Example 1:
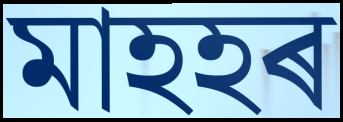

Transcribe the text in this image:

মাহহৰ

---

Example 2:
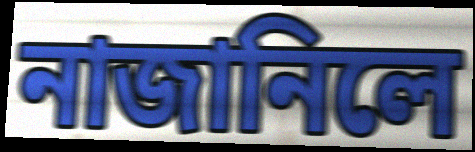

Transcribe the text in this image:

নাজানিলে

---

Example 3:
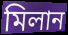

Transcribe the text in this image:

মিলান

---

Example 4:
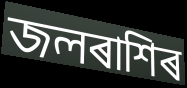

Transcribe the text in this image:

জলৰাশিৰ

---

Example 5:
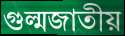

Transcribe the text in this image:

গুল্মজাতীয়